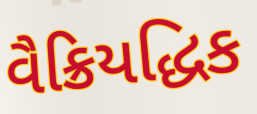
વૈક્રિયદ્ધિક